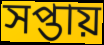
সপ্তায়